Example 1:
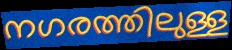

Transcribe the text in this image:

നഗരത്തിലുള്ള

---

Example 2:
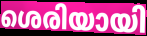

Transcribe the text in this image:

ശെരിയായി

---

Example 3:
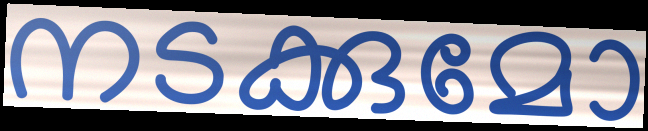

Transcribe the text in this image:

നടക്കുമോ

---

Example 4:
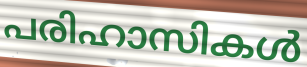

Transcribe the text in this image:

പരിഹാസികൾ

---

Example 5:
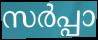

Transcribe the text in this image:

സർപ്പാ